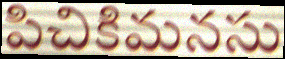
పిచికిమనసు